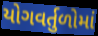
યોગવર્તુળોમાં